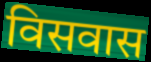
विसवास